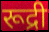
रूद्री